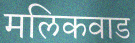
मलिकवाड